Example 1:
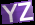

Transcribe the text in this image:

YZ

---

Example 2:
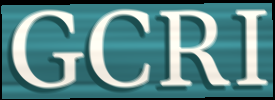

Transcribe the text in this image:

GCRI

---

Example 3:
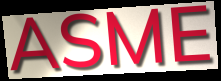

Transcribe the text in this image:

ASME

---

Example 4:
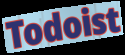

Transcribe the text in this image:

Todoist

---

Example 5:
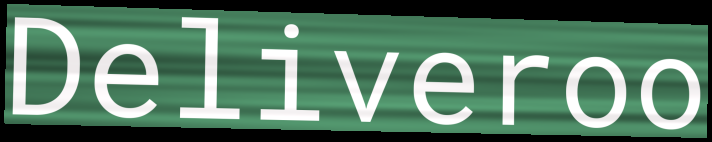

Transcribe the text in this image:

Deliveroo